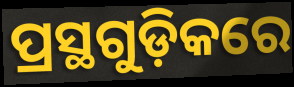
ପ୍ରସ୍ଥଗୁଡ଼ିକରେ